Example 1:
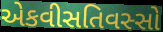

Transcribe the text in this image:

એકવીસતિવસ્સો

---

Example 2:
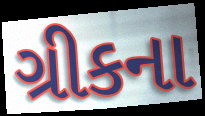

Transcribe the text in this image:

ગ્રીકના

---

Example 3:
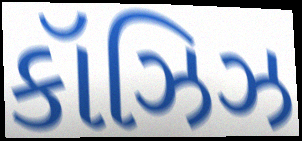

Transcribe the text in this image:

કૉઝિઝ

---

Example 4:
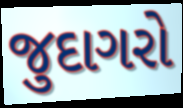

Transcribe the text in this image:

જુદાગરો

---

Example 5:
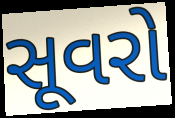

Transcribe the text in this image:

સૂવરો